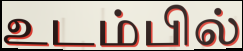
உடம்பில்